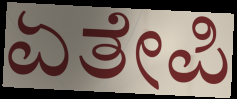
ಏತೇಪಿ